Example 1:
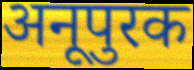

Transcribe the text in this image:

अनूपुरक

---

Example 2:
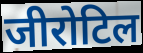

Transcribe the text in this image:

जीरोटिल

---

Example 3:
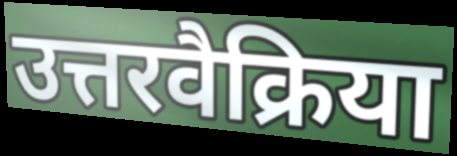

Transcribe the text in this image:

उत्तरवैक्रिया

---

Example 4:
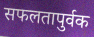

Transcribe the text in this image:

सफलतापुर्वक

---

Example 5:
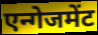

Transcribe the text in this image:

एन्गेजमेंट